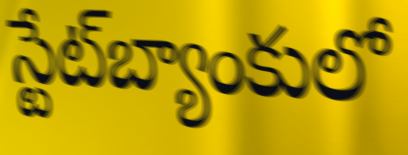
స్టేట్‌బ్యాంకులో